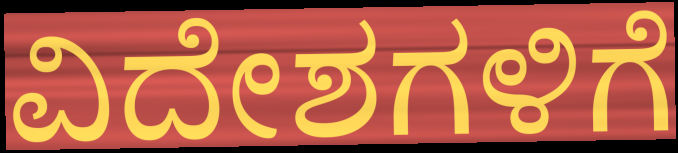
ವಿದೇಶಗಳಿಗೆ